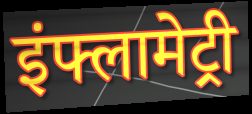
इंफ्लामेट्री